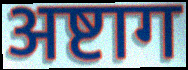
अष्टाग